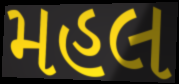
મહલ